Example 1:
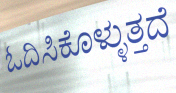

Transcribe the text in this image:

ಓದಿಸಿಕೊಳ್ಳುತ್ತದೆ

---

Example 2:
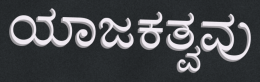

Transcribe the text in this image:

ಯಾಜಕತ್ವವು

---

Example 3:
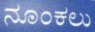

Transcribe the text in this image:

ನೂಂಕಲು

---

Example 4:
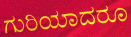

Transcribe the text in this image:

ಗುರಿಯಾದರೂ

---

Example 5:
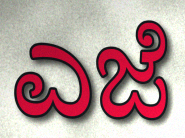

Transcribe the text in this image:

ಎಜೆ